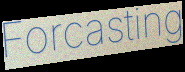
Forcasting